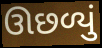
ઊછળ્યું